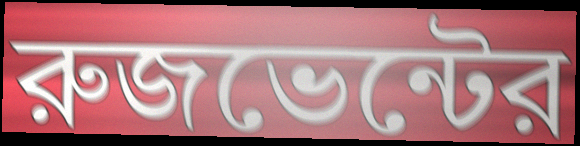
রুজভেন্টের